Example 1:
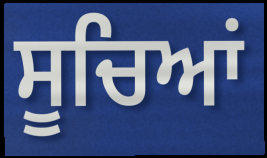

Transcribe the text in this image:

ਸੂਚਿਆਂ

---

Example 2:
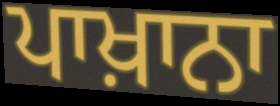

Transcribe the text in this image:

ਪਾਖ਼ਾਨਾ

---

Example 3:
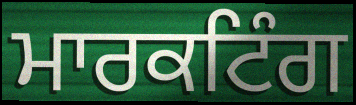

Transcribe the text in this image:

ਮਾਰਕਟਿੰਗ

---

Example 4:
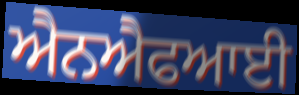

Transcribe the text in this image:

ਐਨਐਫਆਈ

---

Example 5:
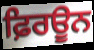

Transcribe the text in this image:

ਫ਼ਿਰਊਨ